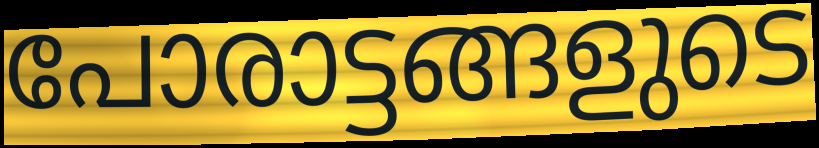
പോരാട്ടങ്ങളുടെ